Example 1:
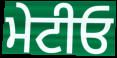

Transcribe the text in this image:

ਮੇਟੀਓ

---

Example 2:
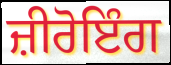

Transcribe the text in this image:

ਜ਼ੀਰੋਇੰਗ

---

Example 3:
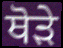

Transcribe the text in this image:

ਥੋਡ਼ੇ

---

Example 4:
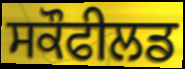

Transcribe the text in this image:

ਸਕੌਫੀਲਡ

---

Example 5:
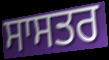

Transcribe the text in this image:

ਸਾਸਤਰ